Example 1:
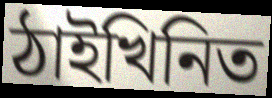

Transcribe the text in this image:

ঠাইখিনিত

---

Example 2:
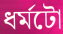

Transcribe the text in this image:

ধৰ্মটো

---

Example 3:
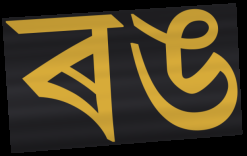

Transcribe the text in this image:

ৰঙ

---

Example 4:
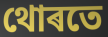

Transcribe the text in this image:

থোৰতে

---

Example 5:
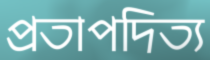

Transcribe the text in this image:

প্ৰতাপদিত্য